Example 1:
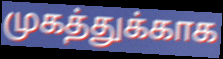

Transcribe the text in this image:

முகத்துக்காக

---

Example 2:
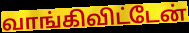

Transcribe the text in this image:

வாங்கிவிட்டேன்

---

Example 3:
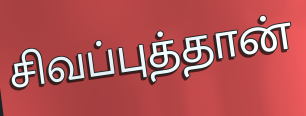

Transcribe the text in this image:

சிவப்புத்தான்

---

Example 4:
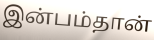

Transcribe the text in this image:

இன்பம்தான்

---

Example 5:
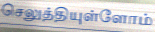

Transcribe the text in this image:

செலுத்தியுள்ளோம்